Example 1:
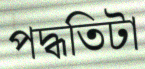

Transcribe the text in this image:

পদ্ধতিটা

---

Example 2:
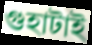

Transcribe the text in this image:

গুহাটাই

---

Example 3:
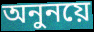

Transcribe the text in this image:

অনুনয়ে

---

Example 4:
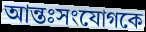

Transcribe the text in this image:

আন্তঃসংযোগকে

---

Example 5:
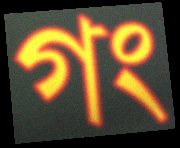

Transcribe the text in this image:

গং